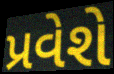
પ્રવેશે